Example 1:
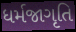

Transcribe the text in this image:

ધર્મજાગૃતિ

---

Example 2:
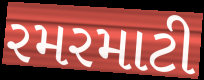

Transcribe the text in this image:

રમરમાટી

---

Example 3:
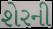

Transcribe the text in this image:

શેરની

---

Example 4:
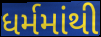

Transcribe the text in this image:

ધર્મમાંથી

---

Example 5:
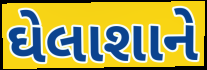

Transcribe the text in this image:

ઘેલાશાને